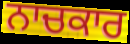
ਨਾਚਕਾਰ